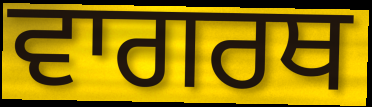
ਵਾਗਰਥ